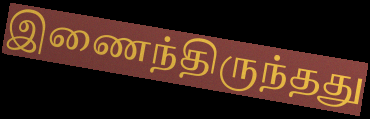
இணைந்திருந்தது